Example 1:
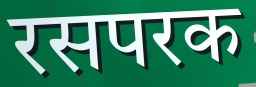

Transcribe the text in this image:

रसपरक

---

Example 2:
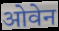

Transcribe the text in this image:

ओवेन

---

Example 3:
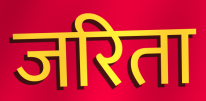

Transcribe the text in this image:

जरिता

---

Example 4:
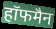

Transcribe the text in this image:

हॉफमैन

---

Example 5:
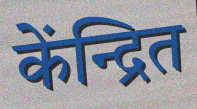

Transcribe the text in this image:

केंन्द्रित